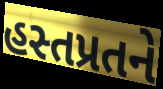
હસ્તપ્રતને